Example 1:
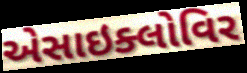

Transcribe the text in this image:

એસાઇક્લોવિર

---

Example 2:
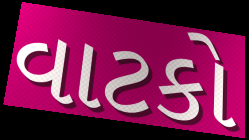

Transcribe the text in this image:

વાટકો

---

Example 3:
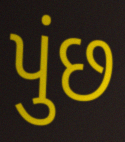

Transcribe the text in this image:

પુંછ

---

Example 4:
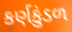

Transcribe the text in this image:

કર્ણકુંડળ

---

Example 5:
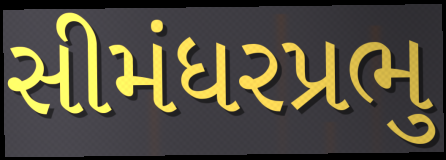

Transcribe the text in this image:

સીમંધરપ્રભુ